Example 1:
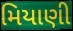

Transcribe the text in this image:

મિયાણી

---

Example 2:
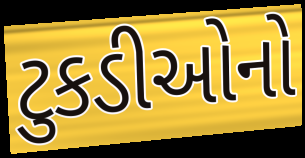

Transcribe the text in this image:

ટુકડીઓનો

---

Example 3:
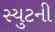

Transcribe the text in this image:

સ્યુટની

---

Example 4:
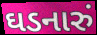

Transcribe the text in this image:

ઘડનારું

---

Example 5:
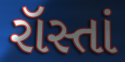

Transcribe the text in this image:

રૉસ્તાં